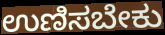
ಉಣಿಸಬೇಕು